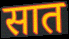
सात